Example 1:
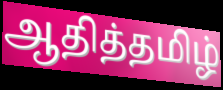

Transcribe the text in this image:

ஆதித்தமிழ்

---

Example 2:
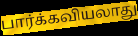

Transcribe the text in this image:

பார்க்கவியலாது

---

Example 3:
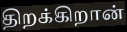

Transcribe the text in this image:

திறக்கிறான்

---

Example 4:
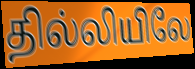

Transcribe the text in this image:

தில்லியிலே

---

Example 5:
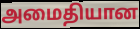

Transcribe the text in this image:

அமைதியான